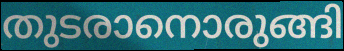
തുടരാനൊരുങ്ങി